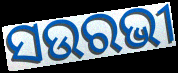
ସଉରଭୀ